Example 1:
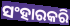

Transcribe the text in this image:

ସଂହାରକରି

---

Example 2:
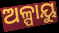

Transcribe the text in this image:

ଅଳ୍ପାୟୁ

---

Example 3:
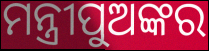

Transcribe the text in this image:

ମନ୍ତ୍ରୀପୁଅଙ୍କର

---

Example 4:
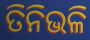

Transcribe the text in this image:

ତିନିଭଳି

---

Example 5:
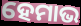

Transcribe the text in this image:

ହେମାଭ